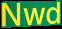
Nwd